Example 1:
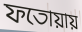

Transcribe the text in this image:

ফতোয়ায়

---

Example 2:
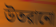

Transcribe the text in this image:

উতরানো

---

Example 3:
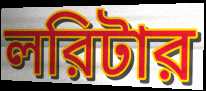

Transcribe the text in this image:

লরিটার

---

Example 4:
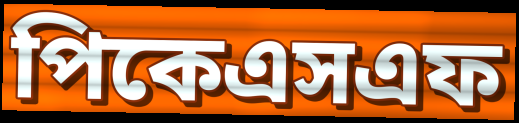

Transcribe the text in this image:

পিকেএসএফ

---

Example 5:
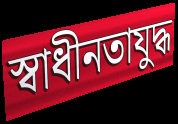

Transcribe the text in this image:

স্বাধীনতাযুদ্ধ